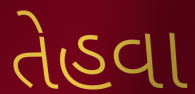
તેહવા